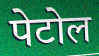
पेटोल